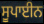
ਸੂਪਾਈਨ